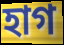
হাগ